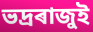
ভদ্ৰৰাজুই